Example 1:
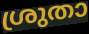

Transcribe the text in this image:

ശ്രുതാ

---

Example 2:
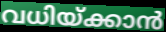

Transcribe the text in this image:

വധിയ്ക്കാൻ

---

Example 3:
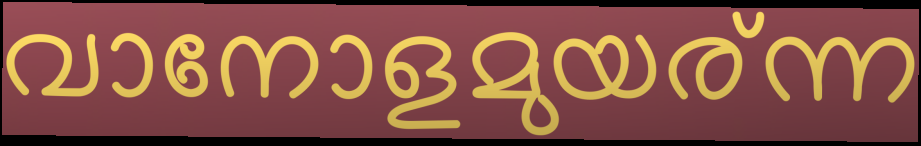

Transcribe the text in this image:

വാനോളമുയര്ന്ന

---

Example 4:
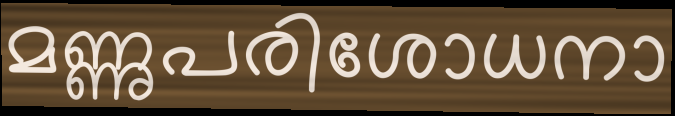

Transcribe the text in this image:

മണ്ണുപരിശോധനാ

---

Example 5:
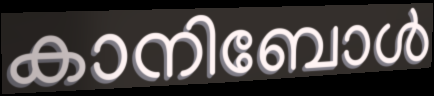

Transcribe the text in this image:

കാനിബോൾ